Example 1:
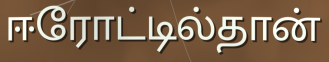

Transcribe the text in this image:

ஈரோட்டில்தான்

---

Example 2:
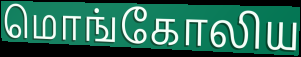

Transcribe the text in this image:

மொங்கோலிய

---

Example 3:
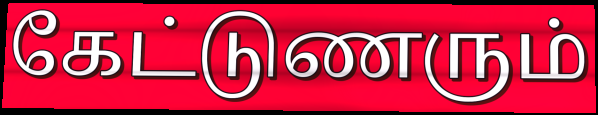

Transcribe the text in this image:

கேட்டுணரும்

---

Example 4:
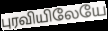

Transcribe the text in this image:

புரவியிலேயே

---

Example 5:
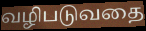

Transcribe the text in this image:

வழிபடுவதை